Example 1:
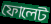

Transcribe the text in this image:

ফোলেট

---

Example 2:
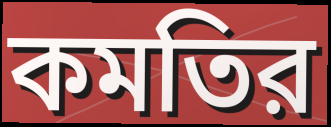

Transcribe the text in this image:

কমতির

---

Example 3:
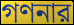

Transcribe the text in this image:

গণনার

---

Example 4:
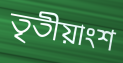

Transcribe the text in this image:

তৃতীয়াংশ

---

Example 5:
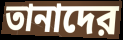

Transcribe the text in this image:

তানাদের